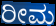
ರೀಮ